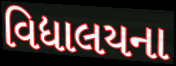
વિદ્યાલયના